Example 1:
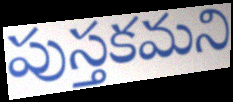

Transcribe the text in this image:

పుస్తకమని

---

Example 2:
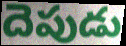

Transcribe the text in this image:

దెపుడు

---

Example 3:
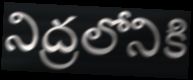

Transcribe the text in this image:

నిద్రలోనికి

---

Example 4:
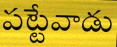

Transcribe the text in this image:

పట్టేవాడు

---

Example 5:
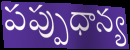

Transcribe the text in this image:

పప్పుధాన్య